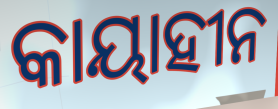
କାୟାହୀନ